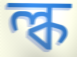
ল্ক